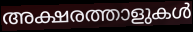
അക്ഷരത്താളുകൾ